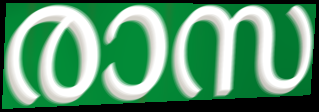
രാസ